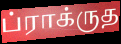
ப்ராக்ருத